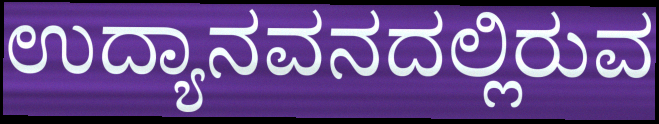
ಉದ್ಯಾನವನದಲ್ಲಿರುವ